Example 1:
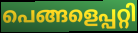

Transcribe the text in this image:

പെങ്ങളെപ്പറ്റി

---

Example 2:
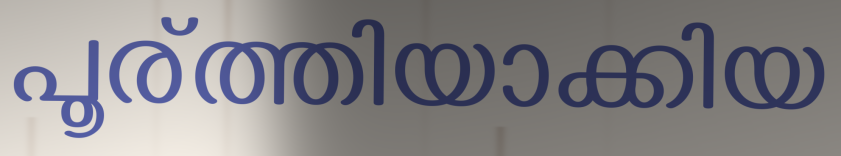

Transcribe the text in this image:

പൂര്ത്തിയാക്കിയ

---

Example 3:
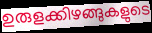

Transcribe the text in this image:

ഉരുളക്കിഴങ്ങുകളുടെ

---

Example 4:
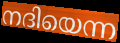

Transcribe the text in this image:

നദിയെന്ന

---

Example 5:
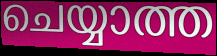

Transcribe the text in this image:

ചെയ്യാത്ത